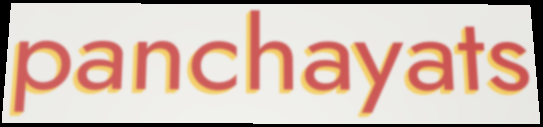
panchayats